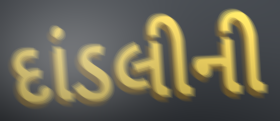
દાંડલીની